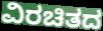
ವಿರಚಿತದ